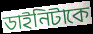
ডাইনিটাকে